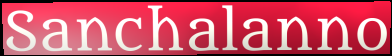
Sanchalanno